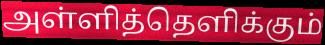
அள்ளித்தெளிக்கும்